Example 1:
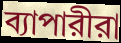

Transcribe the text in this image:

ব্যাপারীরা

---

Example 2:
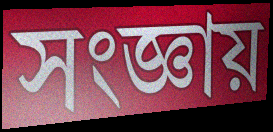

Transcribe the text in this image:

সংজ্ঞায়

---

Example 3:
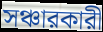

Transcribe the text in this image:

সঞ্চারকারী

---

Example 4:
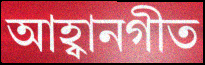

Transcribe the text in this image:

আহ্বানগীত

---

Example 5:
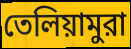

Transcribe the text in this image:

তেলিয়ামুরা